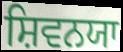
ਸ਼ਿਵਨਯਾ